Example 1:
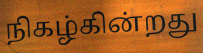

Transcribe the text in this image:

நிகழ்கின்றது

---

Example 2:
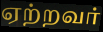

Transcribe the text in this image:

ஏற்றவர்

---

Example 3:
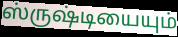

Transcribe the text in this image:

ஸ்ருஷ்டியையும்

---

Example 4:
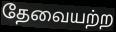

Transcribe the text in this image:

தேவையற்ற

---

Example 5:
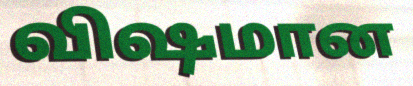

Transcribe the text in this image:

விஷமான